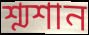
শ্মশান